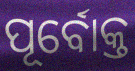
ପୂର୍ବୋକ୍ତ